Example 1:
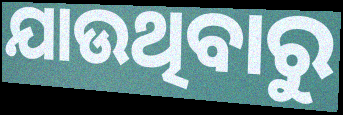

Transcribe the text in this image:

ଯାଉଥିବାରୁ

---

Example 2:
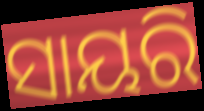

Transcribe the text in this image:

ସାୟରି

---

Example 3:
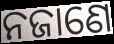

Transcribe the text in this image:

ନଜାଣେ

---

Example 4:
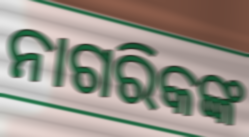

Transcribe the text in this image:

ନାଗରିକଙ୍କ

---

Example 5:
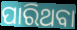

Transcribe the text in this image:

ପାରିଥବା